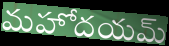
మహోదయమ్